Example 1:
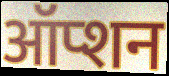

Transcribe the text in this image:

ऑप्‍शन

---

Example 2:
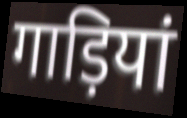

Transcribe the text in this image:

गाड़ियां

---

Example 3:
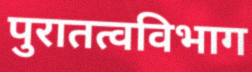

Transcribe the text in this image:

पुरातत्वविभाग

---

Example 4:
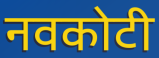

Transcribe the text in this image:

नवकोटी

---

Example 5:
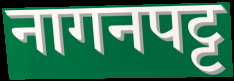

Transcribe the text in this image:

नागनपट्ट